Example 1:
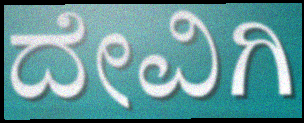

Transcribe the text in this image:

ದೇವಿಗಿ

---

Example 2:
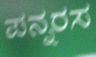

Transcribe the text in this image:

ಪನ್ನರಸ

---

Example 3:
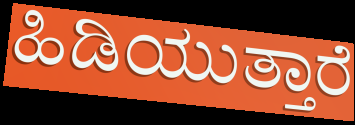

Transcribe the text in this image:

ಹಿಡಿಯುತ್ತಾರೆ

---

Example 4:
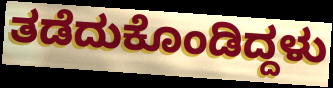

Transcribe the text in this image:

ತಡೆದುಕೊಂಡಿದ್ದಳು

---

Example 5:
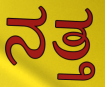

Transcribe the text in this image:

ನತ್ತ